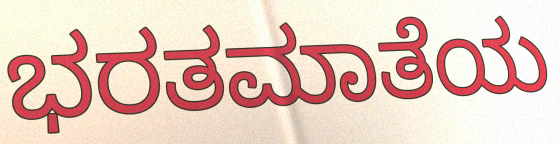
ಭರತಮಾತೆಯ